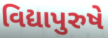
વિદ્યાપુરુષે